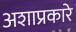
अशाप्रकारे